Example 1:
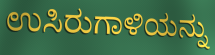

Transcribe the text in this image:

ಉಸಿರುಗಾಳಿಯನ್ನು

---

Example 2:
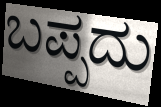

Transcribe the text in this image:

ಬಪ್ಪದು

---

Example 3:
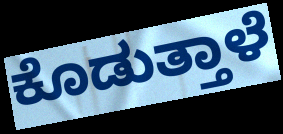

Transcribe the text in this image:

ಕೊಡುತ್ತಾಳೆ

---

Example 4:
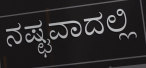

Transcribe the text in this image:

ನಷ್ಟವಾದಲ್ಲಿ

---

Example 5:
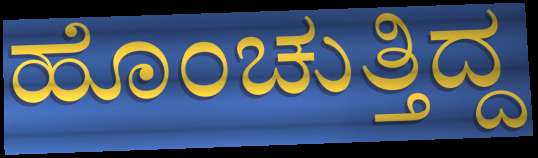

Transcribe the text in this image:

ಹೊಂಚುತ್ತಿದ್ದ